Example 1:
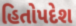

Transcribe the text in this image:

હિતોપદેશ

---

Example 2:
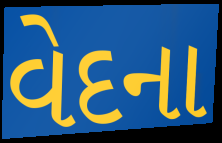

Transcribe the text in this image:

વેદના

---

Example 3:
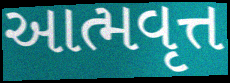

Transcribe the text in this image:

આત્મવૃત્ત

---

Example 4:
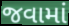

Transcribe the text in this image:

જવામાં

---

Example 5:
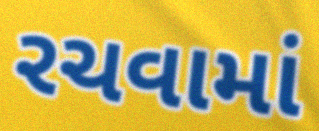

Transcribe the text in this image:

રચવામાં